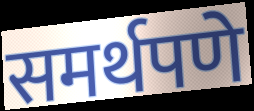
समर्थपणे